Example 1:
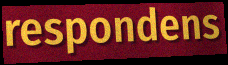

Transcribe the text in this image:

respondens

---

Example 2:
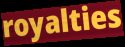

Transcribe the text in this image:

royalties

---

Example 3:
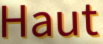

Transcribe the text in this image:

Haut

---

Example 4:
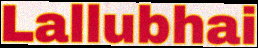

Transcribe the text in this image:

Lallubhai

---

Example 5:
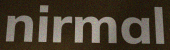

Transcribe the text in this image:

nirmal